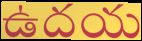
ఉదయ